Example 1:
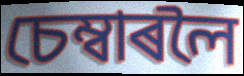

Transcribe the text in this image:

চেম্বাৰলৈ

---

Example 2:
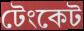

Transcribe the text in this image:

টেংকেট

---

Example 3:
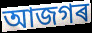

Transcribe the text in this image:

আজগৰ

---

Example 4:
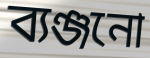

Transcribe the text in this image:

ব্যঞ্জনো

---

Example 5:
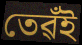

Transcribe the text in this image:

তেৱঁই